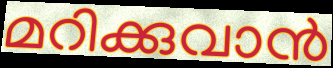
മറിക്കുവാൻ